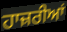
ਹਾਜ਼ਰੀਆਂ